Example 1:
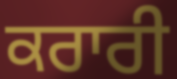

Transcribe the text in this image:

ਕਰਾਰੀ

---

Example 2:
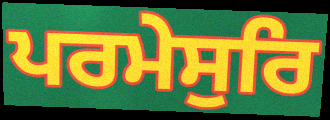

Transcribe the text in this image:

ਪਰਮੇਸੁਰਿ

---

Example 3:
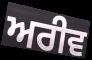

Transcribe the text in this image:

ਅਰੀਵ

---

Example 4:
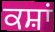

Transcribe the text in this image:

ਕਸ਼ਾਂ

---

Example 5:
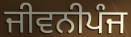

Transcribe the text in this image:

ਜੀਵਨੀਪੰਜ